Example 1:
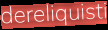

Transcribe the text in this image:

dereliquisti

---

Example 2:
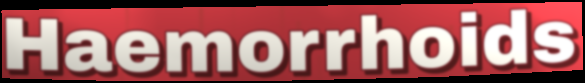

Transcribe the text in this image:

Haemorrhoids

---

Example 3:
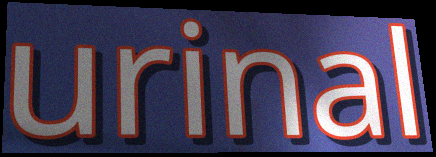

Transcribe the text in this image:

urinal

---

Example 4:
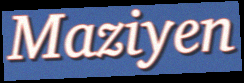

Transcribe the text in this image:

Maziyen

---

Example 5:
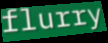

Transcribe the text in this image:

flurry